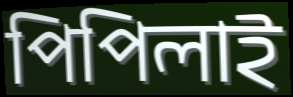
পিপিলাই